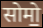
सोमो॒